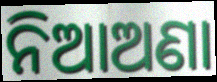
ନିଆଅଣା